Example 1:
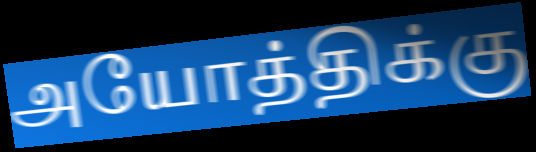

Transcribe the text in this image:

அயோத்திக்கு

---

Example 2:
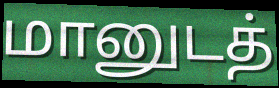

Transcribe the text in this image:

மானுடத்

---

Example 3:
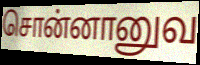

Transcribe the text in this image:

சொன்னானுவ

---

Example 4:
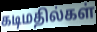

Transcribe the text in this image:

கடிமதில்கள்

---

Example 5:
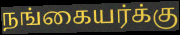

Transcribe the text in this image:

நங்கையர்க்கு